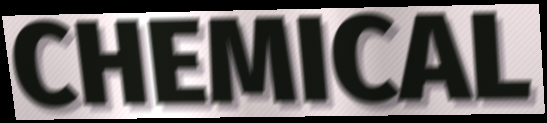
CHEMICAL